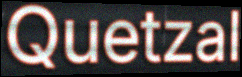
Quetzal